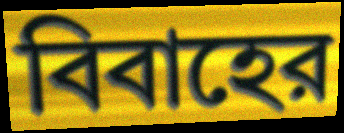
বিবাহের